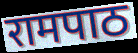
रामपाठ